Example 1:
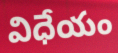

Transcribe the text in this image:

విధేయం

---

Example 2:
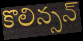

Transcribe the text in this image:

కొలిన్సన్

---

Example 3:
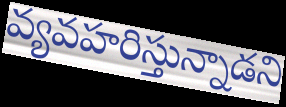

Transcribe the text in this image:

వ్యవహరిస్తున్నాడని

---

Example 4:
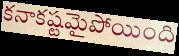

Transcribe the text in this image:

కనాకష్టమైపోయింది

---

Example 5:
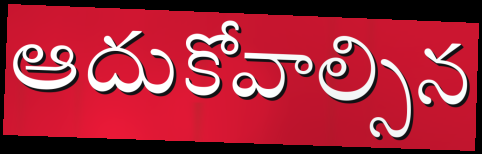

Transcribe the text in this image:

ఆదుకోవాల్సిన